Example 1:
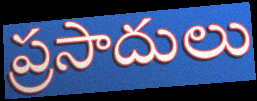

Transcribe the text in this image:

ప్రసాదులు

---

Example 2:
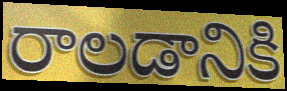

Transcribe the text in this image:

రాలడానికి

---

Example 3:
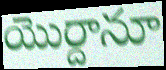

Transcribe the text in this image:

యొర్దానూ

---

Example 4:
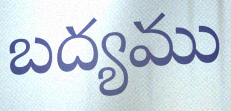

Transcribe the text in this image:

బద్యము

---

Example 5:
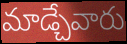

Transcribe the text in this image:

మాడ్చేవారు